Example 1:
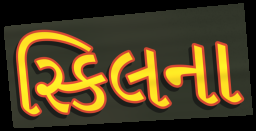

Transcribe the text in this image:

સ્કિલના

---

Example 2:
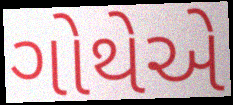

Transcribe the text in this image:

ગોથેએ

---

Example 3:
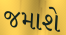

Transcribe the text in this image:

જમાશે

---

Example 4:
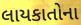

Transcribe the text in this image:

લાયકાતોના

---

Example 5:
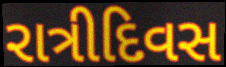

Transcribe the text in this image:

રાત્રીદિવસ